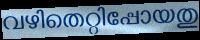
വഴിതെറ്റിപ്പോയതു